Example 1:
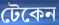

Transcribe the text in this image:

টেকেন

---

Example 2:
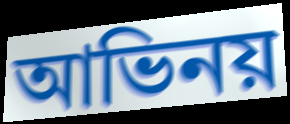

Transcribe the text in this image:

আভিনয়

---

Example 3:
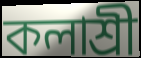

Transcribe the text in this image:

কলাশ্রী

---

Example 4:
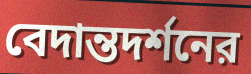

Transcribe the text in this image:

বেদান্তদর্শনের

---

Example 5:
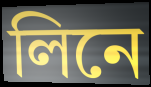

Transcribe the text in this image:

লিনে